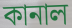
কানাল